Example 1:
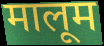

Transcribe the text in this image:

मालूम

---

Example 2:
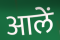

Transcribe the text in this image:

आलें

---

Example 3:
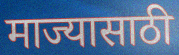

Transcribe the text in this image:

माज्यासाठी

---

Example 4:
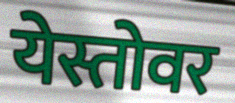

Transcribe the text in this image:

येस्तोवर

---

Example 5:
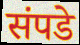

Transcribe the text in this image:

संपडे